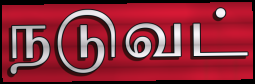
நடுவட்